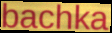
bachka